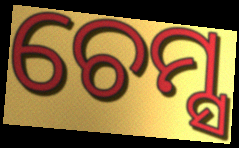
ଚେମ୍ସ